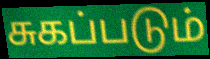
சுகப்படும்